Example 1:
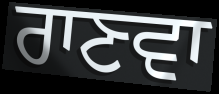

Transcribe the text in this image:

ਰਾਣਵਾ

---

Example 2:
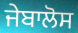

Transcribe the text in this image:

ਜੇਬਾਲੋਸ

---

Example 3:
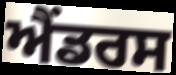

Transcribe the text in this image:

ਐਂਡਰਸ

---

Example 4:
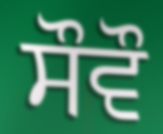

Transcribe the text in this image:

ਸੌਵੌ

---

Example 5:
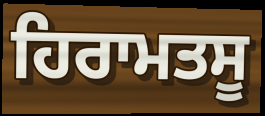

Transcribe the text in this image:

ਹਿਰਾਮਤਸੂ